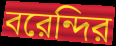
বরেন্দির